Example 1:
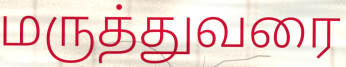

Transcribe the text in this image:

மருத்துவரை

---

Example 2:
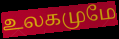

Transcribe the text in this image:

உலகமுமே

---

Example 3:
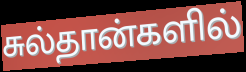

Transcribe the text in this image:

சுல்தான்களில்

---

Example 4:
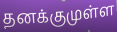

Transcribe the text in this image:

தனக்குமுள்ள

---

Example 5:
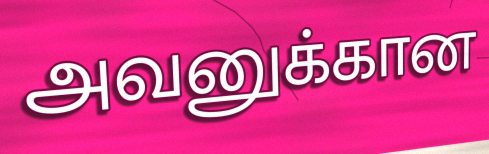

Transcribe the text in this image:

அவனுக்கான